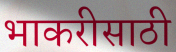
भाकरीसाठी